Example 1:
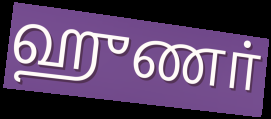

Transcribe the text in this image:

ஹுணர்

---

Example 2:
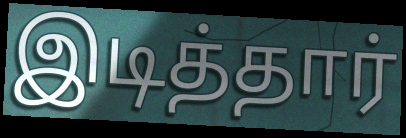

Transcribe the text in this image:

இடித்தார்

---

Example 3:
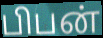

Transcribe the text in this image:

பிபன்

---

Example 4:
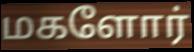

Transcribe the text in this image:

மகளோர்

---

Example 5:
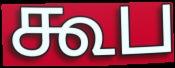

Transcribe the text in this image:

கூப